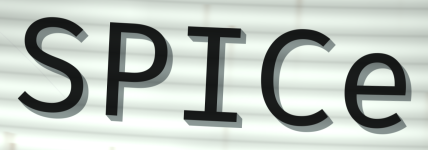
SPICe